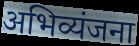
अभिव्यंजना